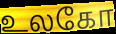
உலகோ